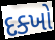
દક્ખો